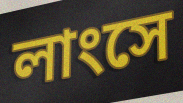
লাংসে